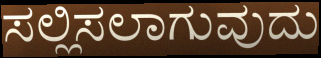
ಸಲ್ಲಿಸಲಾಗುವುದು